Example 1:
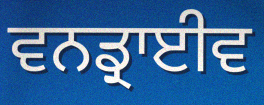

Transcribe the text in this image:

ਵਨਡ੍ਰਾਈਵ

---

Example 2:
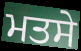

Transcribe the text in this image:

ਮਤਸੇ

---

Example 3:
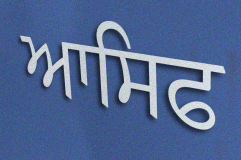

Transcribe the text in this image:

ਆਸਿਫ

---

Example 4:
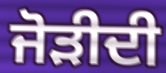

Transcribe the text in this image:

ਜੋੜੀਦੀ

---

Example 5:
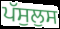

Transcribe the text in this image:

ਪੱਸੁਲੁਸ